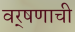
वर्षणाची